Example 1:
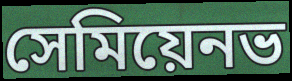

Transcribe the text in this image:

সেমিয়েনভ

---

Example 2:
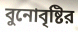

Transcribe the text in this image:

বুনোবৃষ্টির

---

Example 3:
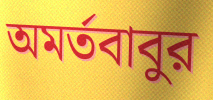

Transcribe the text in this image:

অমর্তবাবুর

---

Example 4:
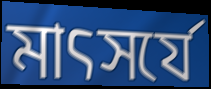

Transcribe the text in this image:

মাৎসর্যে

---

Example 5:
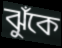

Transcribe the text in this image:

ঝুঁকে